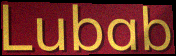
Lubab